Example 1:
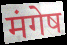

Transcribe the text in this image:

मंगेष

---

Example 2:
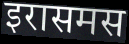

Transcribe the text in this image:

इरासमस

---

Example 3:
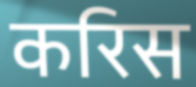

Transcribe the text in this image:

करिस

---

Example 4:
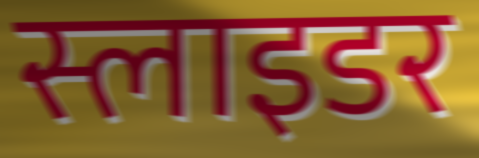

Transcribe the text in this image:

स्लाइडर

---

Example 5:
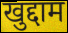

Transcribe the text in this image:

खुद्दाम